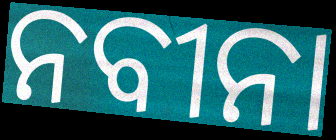
ନବୀନା